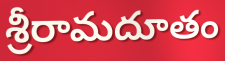
శ్రీరామదూతం